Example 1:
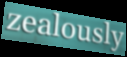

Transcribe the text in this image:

zealously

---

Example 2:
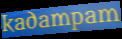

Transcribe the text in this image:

kadampam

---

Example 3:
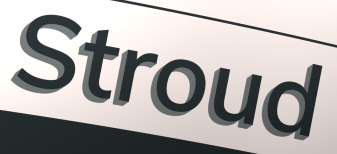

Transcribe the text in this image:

Stroud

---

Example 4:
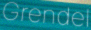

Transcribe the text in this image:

Grendel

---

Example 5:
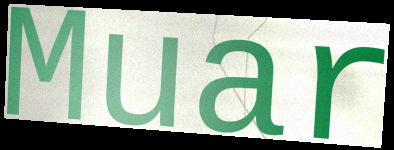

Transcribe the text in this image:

Muar